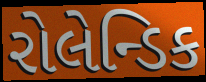
રોલેન્ડિક